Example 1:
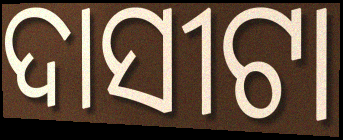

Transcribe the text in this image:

ଦାସୀଟା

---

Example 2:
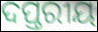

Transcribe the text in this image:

ଦପ୍ତରୀୟ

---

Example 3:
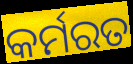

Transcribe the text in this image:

କର୍ମରତ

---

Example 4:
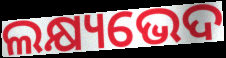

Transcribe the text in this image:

ଲକ୍ଷ୍ୟଭେଦ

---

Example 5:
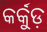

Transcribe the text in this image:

କର୍କୁଡ଼